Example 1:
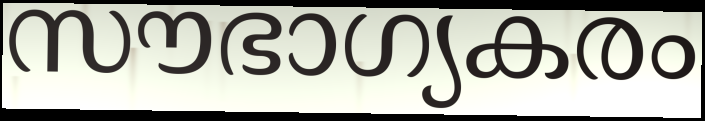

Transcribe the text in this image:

സൗഭാഗ്യകരം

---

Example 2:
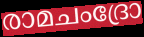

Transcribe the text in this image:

രാമചംദ്രോ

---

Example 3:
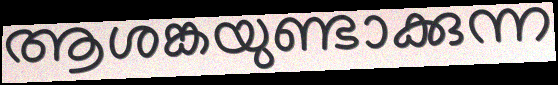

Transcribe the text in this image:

ആശങ്കയുണ്ടാക്കുന്ന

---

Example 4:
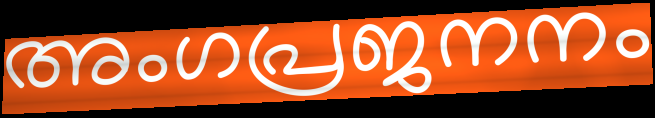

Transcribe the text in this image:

അംഗപ്രജനനം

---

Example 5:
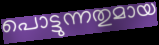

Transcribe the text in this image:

പൊട്ടുന്നതുമായ